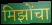
मिझोंचा